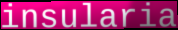
insularia